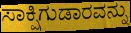
ಸಾಕ್ಷಿಗುಡಾರವನ್ನು